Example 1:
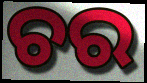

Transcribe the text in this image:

ଚର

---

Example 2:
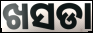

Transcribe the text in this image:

ଖସଡା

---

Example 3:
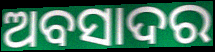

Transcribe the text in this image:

ଅବସାଦର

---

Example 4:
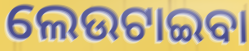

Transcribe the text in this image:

ଲେଉଟାଇବା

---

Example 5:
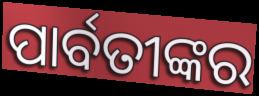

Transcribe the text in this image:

ପାର୍ବତୀଙ୍କର